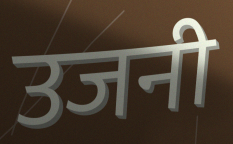
उजनी